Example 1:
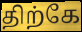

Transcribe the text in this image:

திற்கே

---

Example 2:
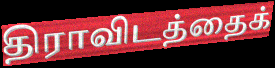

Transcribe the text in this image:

திராவிடத்தைக்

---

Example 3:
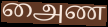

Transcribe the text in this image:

அைண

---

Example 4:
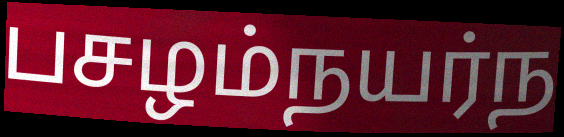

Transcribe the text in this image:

பசழம்நயர்ந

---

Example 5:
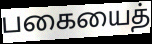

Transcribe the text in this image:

பகையைத்